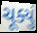
ચૂક્યું